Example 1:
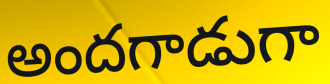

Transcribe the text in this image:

అందగాడుగా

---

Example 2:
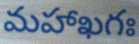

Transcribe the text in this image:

మహాఖగః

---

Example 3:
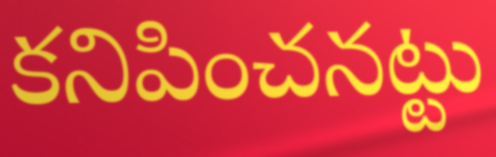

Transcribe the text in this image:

కనిపించనట్టు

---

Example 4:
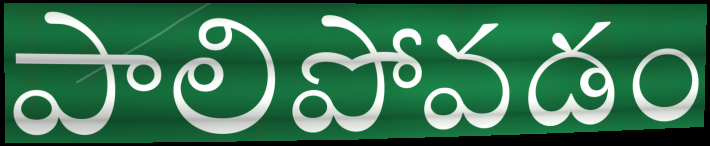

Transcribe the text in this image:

పాలిపోవడం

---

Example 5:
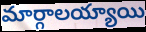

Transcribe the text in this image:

మార్గాలయ్యాయి